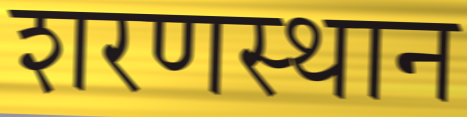
शरणस्थान